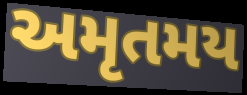
અમૃતમય